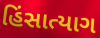
હિંસાત્યાગ